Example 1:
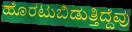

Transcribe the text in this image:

ಹೊರಟುಬಿಡುತ್ತಿದ್ದೆವು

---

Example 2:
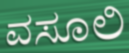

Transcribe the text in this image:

ವಸೂಲಿ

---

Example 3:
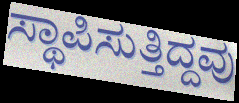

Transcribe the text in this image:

ಸ್ಥಾಪಿಸುತ್ತಿದ್ದವು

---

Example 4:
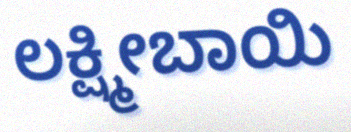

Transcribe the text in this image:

ಲಕ್ಷ್ಮೀಬಾಯಿ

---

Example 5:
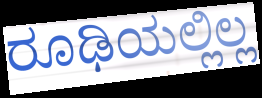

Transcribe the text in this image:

ರೂಢಿಯಲ್ಲಿಲ್ಲ